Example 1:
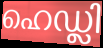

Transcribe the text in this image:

ഹെഡ്ലി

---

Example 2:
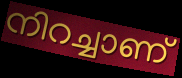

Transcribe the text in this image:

നിറച്ചാണ്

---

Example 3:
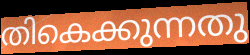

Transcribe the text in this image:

തികെക്കുന്നതു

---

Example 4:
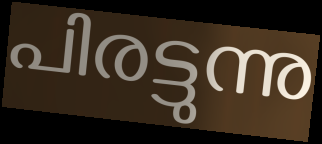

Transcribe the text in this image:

പിരട്ടുന്നു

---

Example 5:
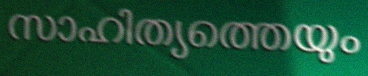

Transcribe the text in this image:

സാഹിത്യത്തെയും